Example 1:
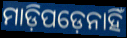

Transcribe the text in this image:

ମାଡ଼ିପଡ଼େନାହିଁ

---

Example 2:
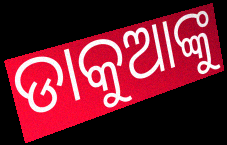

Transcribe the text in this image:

ଡାକୁଆଙ୍କୁ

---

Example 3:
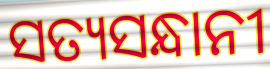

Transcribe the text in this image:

ସତ୍ୟସନ୍ଧାନୀ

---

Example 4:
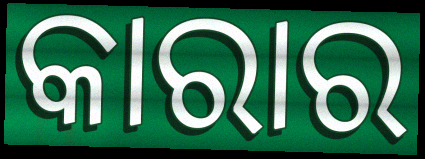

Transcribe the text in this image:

କାରାର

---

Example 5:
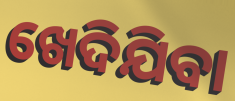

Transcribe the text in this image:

ଖେଦିଯିବା